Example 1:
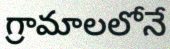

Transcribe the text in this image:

గ్రామాలలోనే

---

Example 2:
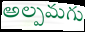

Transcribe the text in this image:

అల్పమగు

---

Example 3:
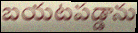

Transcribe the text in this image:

బయటపడ్డాను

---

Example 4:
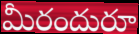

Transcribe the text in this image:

మీరందురూ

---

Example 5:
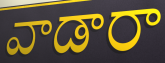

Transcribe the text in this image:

వాడారా